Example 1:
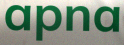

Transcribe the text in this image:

apna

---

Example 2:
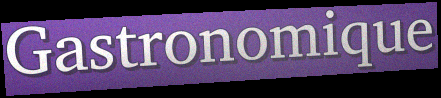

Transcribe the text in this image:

Gastronomique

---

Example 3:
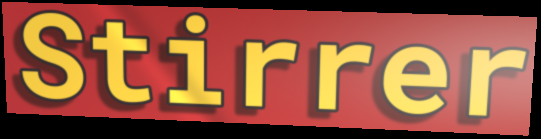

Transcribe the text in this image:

Stirrer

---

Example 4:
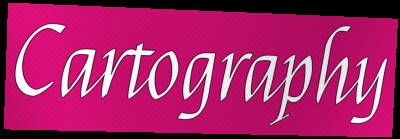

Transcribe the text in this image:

Cartography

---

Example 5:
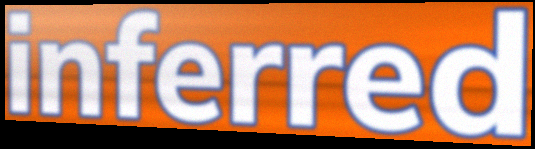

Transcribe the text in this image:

inferred